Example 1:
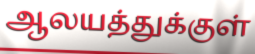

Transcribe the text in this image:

ஆலயத்துக்குள்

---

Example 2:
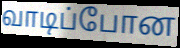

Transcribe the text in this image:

வாடிப்போன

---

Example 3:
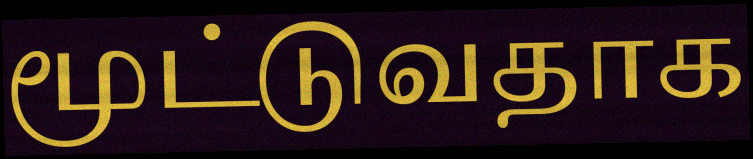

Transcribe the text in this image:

மூட்டுவதாக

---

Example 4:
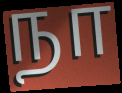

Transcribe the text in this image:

நா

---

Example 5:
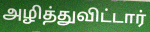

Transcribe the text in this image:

அழித்துவிட்டார்